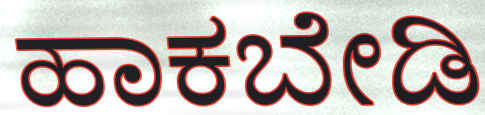
ಹಾಕಬೇಡಿ